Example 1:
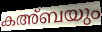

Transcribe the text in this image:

കഅ്ബയും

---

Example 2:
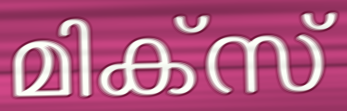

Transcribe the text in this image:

മിക്‌സ്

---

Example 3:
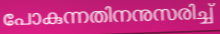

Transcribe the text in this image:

പോകുന്നതിനനുസരിച്ച്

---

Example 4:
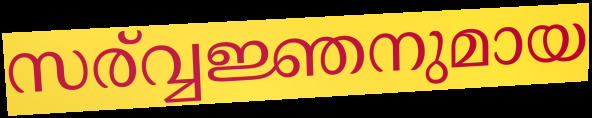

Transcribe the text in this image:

സര്വ്വജ്ഞനുമായ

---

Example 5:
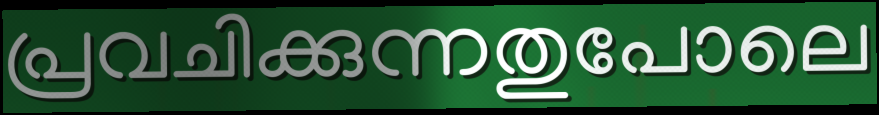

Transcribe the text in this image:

പ്രവചിക്കുന്നതുപോലെ